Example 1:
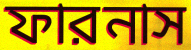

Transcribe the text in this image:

ফারনাস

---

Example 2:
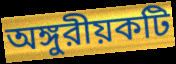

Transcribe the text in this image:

অঙ্গুরীয়কটি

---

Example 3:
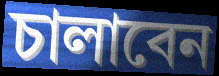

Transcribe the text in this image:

চালাবেন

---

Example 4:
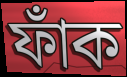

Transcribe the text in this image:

ফাঁক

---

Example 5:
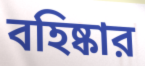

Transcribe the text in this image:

বহিষ্কার